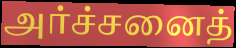
அர்ச்சனைத்